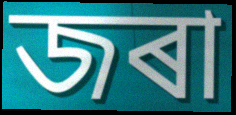
জৰা